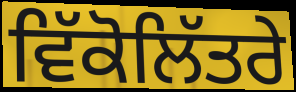
ਵਿੱਕੋਲਿੱਤਰੇ